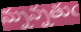
న్నున్నతుఁ